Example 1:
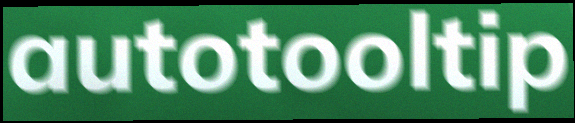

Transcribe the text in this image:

autotooltip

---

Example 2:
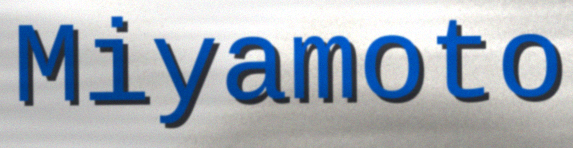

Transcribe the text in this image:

Miyamoto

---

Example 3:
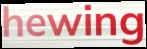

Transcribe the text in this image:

hewing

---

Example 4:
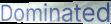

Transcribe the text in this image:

Dominated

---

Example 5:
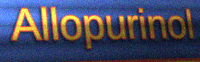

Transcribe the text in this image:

Allopurinol